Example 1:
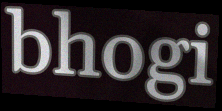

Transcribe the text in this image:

bhogi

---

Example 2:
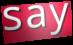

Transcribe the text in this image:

say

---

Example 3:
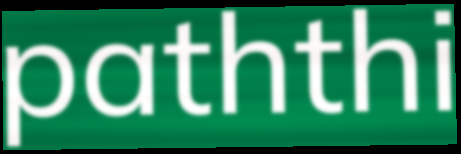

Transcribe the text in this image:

paththi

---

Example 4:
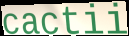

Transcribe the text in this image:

cactii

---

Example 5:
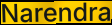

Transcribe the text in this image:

Narendra